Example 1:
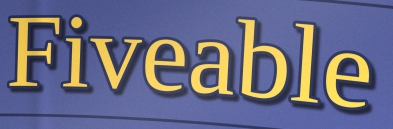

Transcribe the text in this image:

Fiveable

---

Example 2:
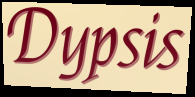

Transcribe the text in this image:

Dypsis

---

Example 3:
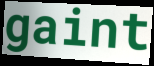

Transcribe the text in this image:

gaint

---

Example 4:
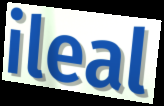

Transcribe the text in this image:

ileal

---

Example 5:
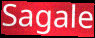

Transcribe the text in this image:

Sagale